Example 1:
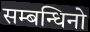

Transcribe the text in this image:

सम्बन्धिनो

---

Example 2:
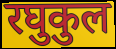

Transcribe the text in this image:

रघुकुल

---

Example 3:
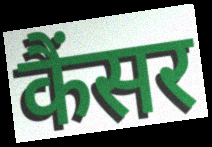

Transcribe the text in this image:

कैंसर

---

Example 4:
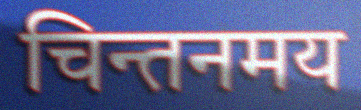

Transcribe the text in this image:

चिन्तनमय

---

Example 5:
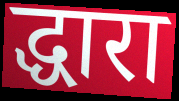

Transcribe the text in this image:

द्धारा